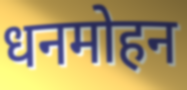
धनमोहन